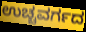
ಉಚ್ಚವರ್ಗದ